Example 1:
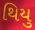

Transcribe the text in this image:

થિયુ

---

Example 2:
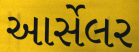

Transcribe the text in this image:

આર્સેલર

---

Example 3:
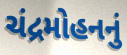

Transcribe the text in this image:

ચંદ્રમોહનનું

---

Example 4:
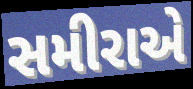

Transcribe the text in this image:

સમીરાએ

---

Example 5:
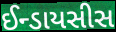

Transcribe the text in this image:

ઈન્ડાયસીસ